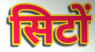
सिटों